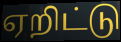
ஏறிட்டு